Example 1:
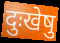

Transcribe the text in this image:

दुःखेषु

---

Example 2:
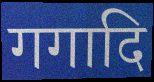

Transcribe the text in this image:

गगादि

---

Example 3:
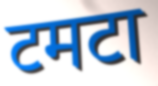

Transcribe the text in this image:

टमटा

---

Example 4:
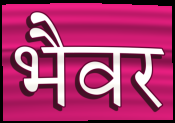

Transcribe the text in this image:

भैवर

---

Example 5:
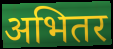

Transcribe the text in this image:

अभितर